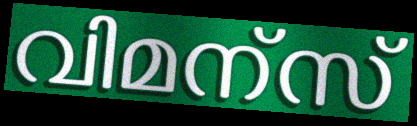
വിമന്സ്